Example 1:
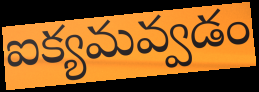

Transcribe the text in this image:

ఐక్యమవ్వడం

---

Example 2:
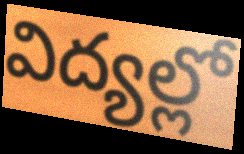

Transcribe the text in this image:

విద్యల్లో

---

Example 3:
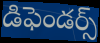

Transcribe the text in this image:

డిఫెండర్స్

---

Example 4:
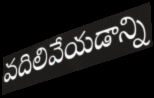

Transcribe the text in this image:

వదిలివేయడాన్ని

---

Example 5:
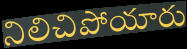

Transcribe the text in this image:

నిలిచిపోయారు